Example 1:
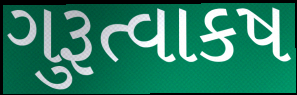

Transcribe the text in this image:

ગુરૂત્વાકષ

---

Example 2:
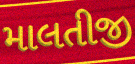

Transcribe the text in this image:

માલતીજી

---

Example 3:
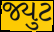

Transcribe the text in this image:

જ્યુટ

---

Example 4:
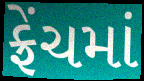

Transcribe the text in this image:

ફ્રેંચમાં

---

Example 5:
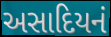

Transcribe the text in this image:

અસાદિયનં